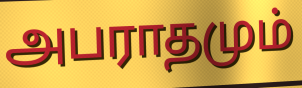
அபராதமும்